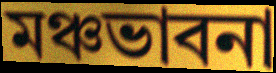
মঞ্চভাবনা